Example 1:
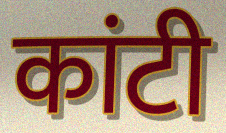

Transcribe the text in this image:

कांटी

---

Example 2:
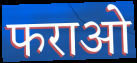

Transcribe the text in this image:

फराओ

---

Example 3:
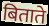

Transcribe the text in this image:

बिताते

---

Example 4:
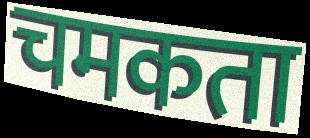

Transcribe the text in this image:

चमकता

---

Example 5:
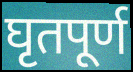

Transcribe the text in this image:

घृतपूर्ण